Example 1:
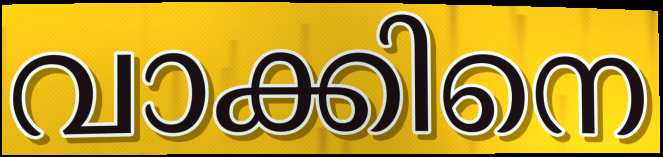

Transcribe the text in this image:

വാക്കിനെ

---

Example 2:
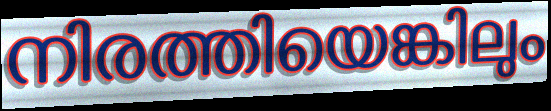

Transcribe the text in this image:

നിരത്തിയെങ്കിലും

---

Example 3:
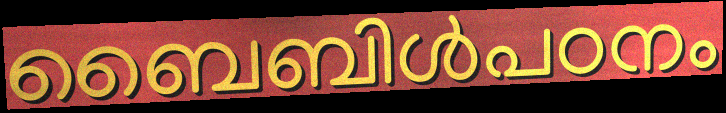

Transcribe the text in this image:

ബൈബിൾപഠനം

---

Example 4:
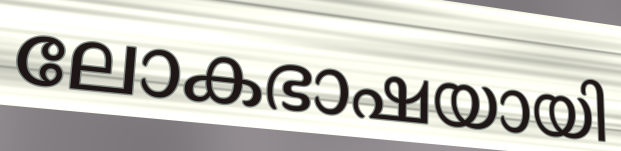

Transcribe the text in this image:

ലോകഭാഷയായി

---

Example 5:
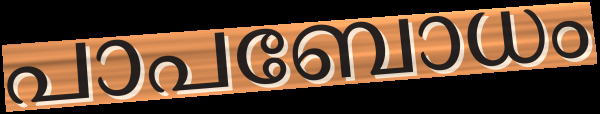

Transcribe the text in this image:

പാപബോധം